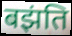
बझंति